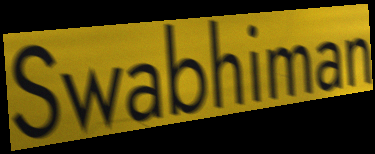
Swabhiman